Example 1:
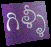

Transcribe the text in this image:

గిళ్ళీ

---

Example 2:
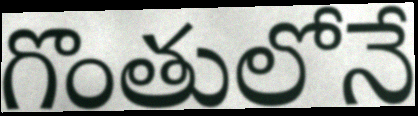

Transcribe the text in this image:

గొంతులోనే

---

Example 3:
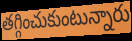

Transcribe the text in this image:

తగ్గించుకుంటున్నారు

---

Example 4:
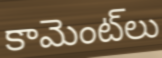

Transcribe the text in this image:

కామెంట్‌లు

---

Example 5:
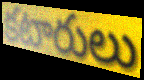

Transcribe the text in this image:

కటారులు